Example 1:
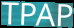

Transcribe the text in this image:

TPAP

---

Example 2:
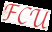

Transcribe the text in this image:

FCU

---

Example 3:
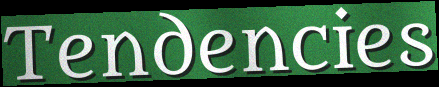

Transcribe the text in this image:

Tendencies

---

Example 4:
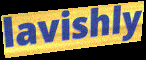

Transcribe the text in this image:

lavishly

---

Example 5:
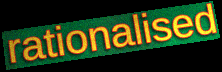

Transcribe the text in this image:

rationalised